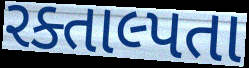
રક્તાલ્પતા